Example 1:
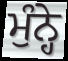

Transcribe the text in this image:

ਮੁੰਨ੍ਹੇ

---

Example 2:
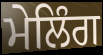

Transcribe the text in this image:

ਮੇਲਿੰਗ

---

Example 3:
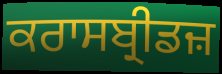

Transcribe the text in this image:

ਕਰਾਸਬ੍ਰੀਡਜ਼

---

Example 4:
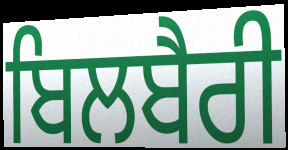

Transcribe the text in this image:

ਬਿਲਬੈਰੀ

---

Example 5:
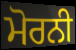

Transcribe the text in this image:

ਮੋਰਨੀ